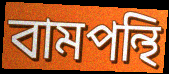
বামপন্থি